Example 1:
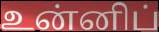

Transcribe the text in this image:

உன்னிப்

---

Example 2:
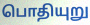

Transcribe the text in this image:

பொதியுறு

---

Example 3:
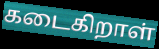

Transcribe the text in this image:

கடைகிறாள்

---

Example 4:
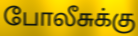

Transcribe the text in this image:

போலீசுக்கு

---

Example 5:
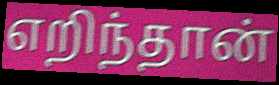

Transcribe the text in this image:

எறிந்தான்